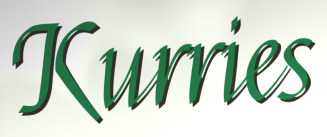
Kurries